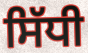
ਸਿੱਧੀ